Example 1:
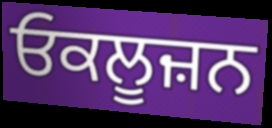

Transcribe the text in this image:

ਓਕਲੂਜ਼ਨ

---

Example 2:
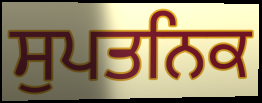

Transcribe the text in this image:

ਸੁਪਤਨਿਕ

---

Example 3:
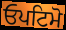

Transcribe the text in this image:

ਓਪਟਿਮੋ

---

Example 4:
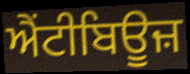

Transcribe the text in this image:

ਐਂਟੀਬਿਊਜ਼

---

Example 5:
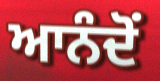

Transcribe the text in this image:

ਆਨੰਦੋਂ